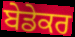
ਬੇਡੇਕਰ